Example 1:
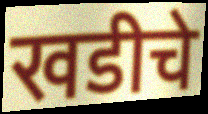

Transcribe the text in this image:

खडीचे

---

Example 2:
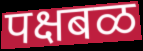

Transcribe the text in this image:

पक्षबळ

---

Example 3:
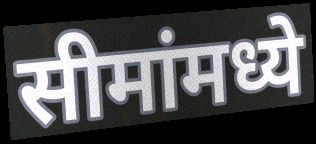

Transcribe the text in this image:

सीमांमध्ये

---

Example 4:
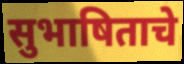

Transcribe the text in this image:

सुभाषिताचे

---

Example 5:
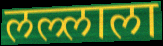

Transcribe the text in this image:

लल्लाला